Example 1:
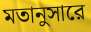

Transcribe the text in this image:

মতানুসারে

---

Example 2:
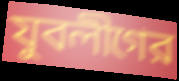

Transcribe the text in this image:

যুবলীগের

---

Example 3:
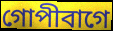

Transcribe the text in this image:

গোপীবাগে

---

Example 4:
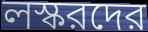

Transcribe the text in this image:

লস্করদের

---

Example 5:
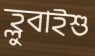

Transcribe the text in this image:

হ্লুবাইশু